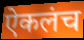
ऐकलंच